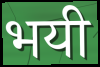
भयी